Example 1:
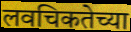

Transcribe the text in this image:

लवचिकतेच्या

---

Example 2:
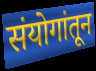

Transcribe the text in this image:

संयोगांतून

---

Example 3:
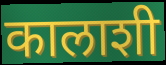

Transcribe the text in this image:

कालाशी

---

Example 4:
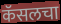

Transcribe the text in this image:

कॅसलचा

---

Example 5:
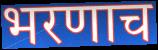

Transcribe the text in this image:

भरणाच